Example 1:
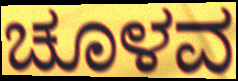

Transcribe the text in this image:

ಚೂಳವ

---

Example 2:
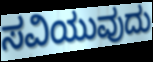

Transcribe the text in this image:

ಸವಿಯುವುದು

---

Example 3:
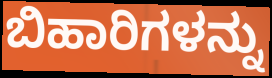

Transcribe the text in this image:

ಬಿಹಾರಿಗಳನ್ನು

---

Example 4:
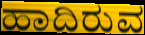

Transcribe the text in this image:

ಹಾದಿರುವ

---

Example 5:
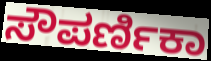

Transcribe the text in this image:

ಸೌಪರ್ಣಿಕಾ